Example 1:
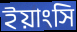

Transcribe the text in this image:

ইয়াংসি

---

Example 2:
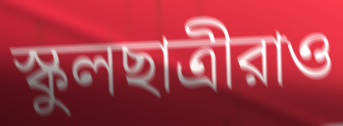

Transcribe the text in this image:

স্কুলছাত্রীরাও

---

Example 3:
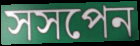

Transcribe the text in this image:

সসপেন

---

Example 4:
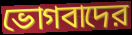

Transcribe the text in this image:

ভোগবাদের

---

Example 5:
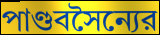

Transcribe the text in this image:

পাণ্ডবসৈন্যের